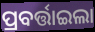
ପ୍ରବର୍ତ୍ତାଇଲା